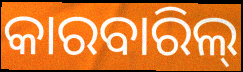
କାରବାରିଲ୍